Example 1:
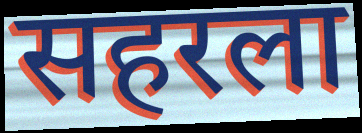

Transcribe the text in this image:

सहरला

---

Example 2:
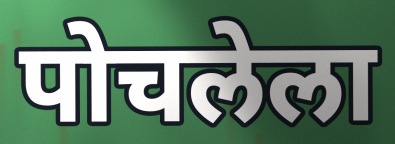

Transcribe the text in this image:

पोचलेला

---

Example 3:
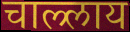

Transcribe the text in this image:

चाल्लाय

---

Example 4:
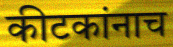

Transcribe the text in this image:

कीटकांनाच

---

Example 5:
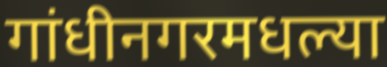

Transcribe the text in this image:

गांधीनगरमधल्या